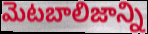
మెటబాలిజాన్ని